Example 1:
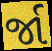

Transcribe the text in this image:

ર્જા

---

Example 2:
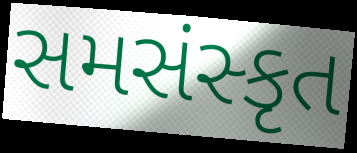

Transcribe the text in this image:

સમસંસ્કૃત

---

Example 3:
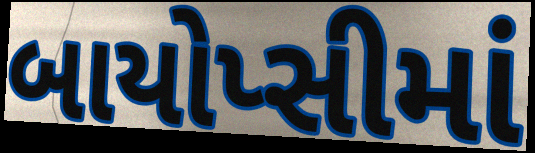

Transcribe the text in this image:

બાયોપ્સીમાં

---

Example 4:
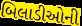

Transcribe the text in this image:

બિલાડીઓની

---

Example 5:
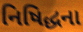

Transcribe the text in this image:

નિષિદ્ધના